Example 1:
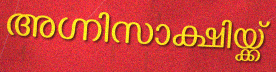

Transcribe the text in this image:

അഗ്നിസാക്ഷിയ്ക്ക്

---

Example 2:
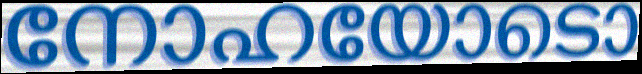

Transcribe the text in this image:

നോഹയോടൊ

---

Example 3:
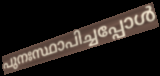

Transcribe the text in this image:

പുനഃസ്ഥാപിച്ചപ്പോൾ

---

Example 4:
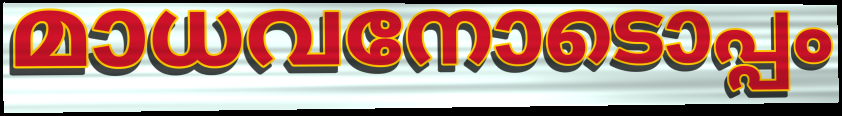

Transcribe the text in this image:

മാധവനോടൊപ്പം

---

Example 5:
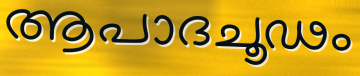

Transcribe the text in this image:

ആപാദചൂഢം